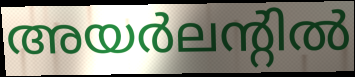
അയർലന്റിൽ